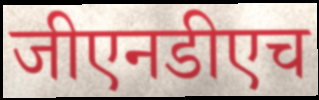
जीएनडीएच